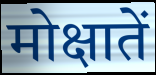
मोक्षातें